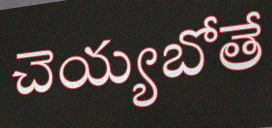
చెయ్యబోతే